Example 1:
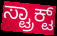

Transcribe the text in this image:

ಸ್ಟ್ರಾಕ್ಟ್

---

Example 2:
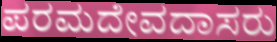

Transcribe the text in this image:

ಪರಮದೇವದಾಸರು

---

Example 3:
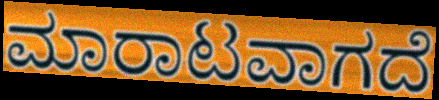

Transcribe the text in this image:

ಮಾರಾಟವಾಗದೆ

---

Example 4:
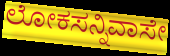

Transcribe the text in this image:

ಲೋಕಸನ್ನಿವಾಸೇ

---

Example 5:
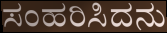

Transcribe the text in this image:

ಸಂಹರಿಸಿದನು